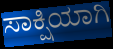
ಸಾಕ್ಷಿಯಾಗಿ